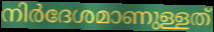
നിർദേശമാണുള്ളത്